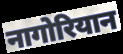
नागोरियान